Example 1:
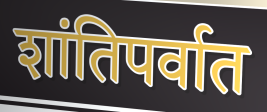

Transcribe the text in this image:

शांतिपर्वात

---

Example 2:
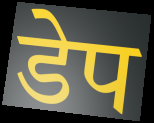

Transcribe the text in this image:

डेप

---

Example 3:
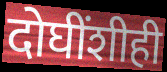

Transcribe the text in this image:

दोघींशीही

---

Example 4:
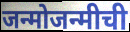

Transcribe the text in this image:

जन्मोजन्मीची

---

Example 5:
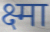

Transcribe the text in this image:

क्ष्मा